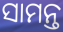
ସାମନ୍ତ